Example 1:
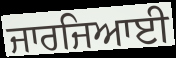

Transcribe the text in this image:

ਜਾਰਜਿਆਈ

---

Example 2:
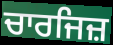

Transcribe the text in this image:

ਚਾਰਜਿਜ਼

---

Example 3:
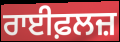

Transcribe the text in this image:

ਰਾਈਫ਼ਲਜ਼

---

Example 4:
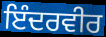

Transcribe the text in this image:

ਇੰਦਰਵੀਰ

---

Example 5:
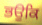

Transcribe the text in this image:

ਭਉਕਿ